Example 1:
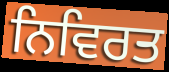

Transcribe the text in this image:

ਨਿਵਿਰਤ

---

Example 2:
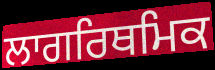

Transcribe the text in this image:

ਲਾਗਰਿਥਮਿਕ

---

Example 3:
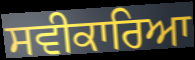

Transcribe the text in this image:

ਸਵੀਕਾਰਿਆ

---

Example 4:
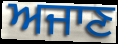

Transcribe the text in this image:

ਅਜਾਣ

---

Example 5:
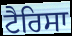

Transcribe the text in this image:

ਟੈਰਿਸਾ